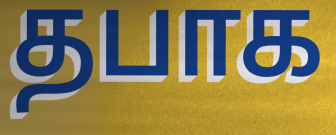
தபாக